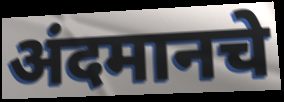
अंदमानचे